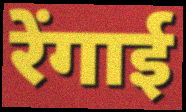
रेंगाई